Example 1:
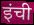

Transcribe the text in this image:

इंची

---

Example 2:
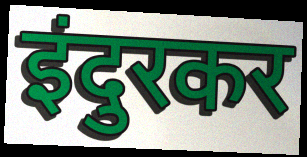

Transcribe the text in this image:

इंदुरकर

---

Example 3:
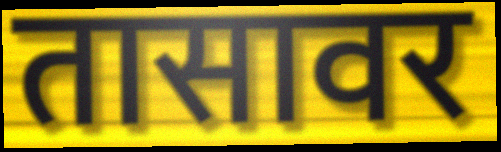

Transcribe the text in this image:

तासावर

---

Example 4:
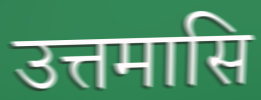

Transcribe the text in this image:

उत्तमासि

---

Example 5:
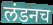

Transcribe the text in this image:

लंडनच